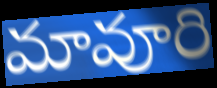
మావూరి